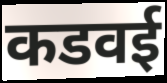
कडवई